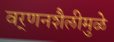
वर्णनशैलीमुळे